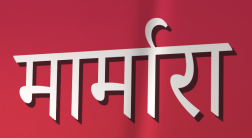
मार्मारा